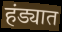
हंड्यात